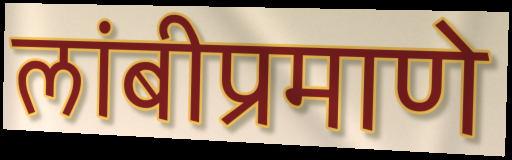
लांबीप्रमाणे